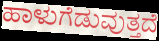
ಹಾಳುಗೆಡುವುತ್ತದೆ